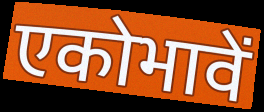
एकोभावें